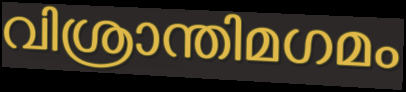
വിശ്രാന്തിമഗമം